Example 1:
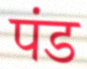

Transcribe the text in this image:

पंड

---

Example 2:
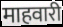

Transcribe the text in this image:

माहवारी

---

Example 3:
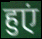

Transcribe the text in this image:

हुएं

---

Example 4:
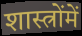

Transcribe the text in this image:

शास्त्रोंमें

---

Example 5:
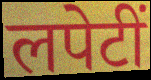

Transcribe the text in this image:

लपेटीं